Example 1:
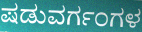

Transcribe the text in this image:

ಷಡುವರ್ಗಂಗಳ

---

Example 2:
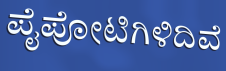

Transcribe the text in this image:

ಪೈಪೋಟಿಗಿಳಿದಿವೆ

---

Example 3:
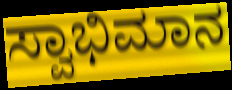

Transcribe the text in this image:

ಸ್ವಾಭಿಮಾನ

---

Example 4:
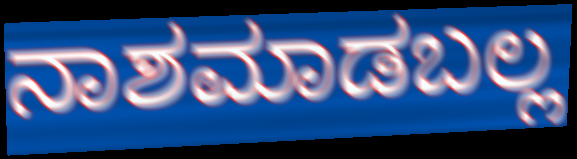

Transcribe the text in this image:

ನಾಶಮಾಡಬಲ್ಲ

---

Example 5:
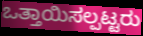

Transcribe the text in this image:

ಒತ್ತಾಯಿಸಲ್ಪಟ್ಟರು